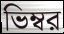
ভিম্বর